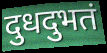
दुधदुभतं